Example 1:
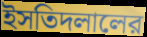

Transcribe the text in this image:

ইসতিদলালের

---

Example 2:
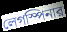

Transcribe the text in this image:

লেগস্পিনার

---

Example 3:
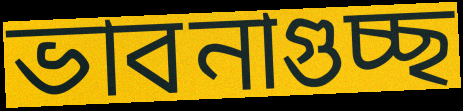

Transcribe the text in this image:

ভাবনাগুচ্ছ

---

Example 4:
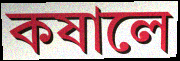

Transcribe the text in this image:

কষালে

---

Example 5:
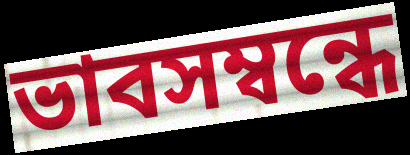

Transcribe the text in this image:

ভাবসম্বন্ধে